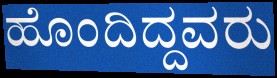
ಹೊಂದಿದ್ದವರು